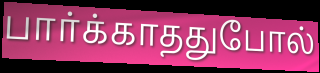
பார்க்காததுபோல்